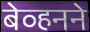
बेव्हनने